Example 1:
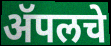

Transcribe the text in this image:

ॲपलचे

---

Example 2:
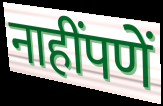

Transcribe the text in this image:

नाहींपणें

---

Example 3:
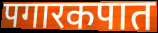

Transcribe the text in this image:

पगारकपात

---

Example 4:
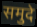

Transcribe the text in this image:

समुदे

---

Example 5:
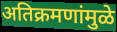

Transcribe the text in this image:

अतिक्रमणांमुळे